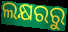
ଲକ୍ଷରରୁ